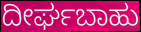
ದೀರ್ಘಬಾಹು